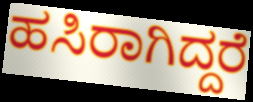
ಹಸಿರಾಗಿದ್ದರೆ